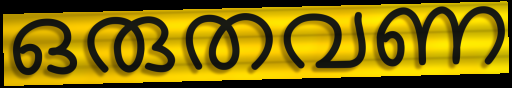
ഒരുതവണ